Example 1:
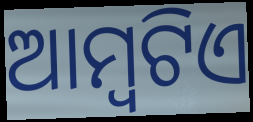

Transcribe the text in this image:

ଆମ୍ବଟିଏ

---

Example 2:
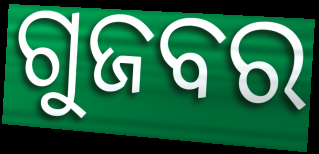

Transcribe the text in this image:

ଗୁଜବର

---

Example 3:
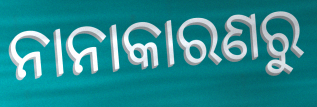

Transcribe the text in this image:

ନାନାକାରଣରୁ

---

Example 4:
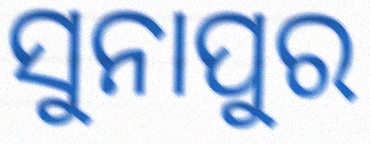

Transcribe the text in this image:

ସୁନାପୁର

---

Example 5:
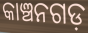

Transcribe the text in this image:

କାଞ୍ଚନଗଡ଼